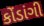
કોંડાંગી